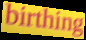
birthing